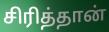
சிரித்தான்